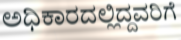
ಅಧಿಕಾರದಲ್ಲಿದ್ದವರಿಗೆ